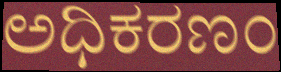
ಅಧಿಕರಣಂ